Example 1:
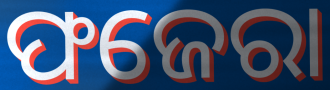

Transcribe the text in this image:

ଫଜେରା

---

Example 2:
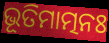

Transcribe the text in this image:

ଭୂତିମାତ୍ମନଃ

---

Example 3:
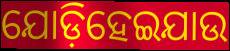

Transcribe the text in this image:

ଯୋଡ଼ିହେଇଯାଉ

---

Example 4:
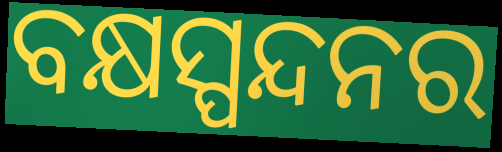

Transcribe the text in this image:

ବକ୍ଷସ୍ପନ୍ଦନର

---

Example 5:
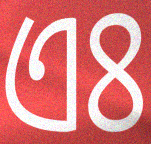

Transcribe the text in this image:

ଏଃ